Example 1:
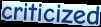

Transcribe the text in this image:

criticized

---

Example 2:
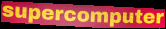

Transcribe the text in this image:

supercomputer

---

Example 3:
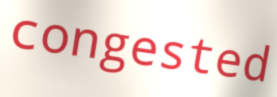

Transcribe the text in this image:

congested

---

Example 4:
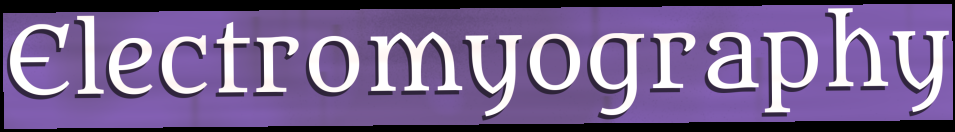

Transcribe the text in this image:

Electromyography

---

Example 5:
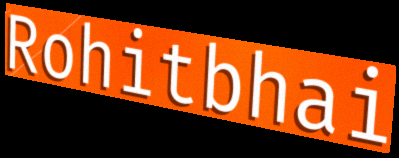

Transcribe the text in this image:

Rohitbhai